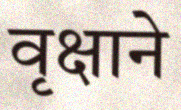
वृक्षाने